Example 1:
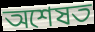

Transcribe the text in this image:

অশেষত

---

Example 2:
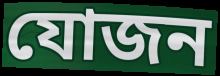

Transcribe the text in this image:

যোজন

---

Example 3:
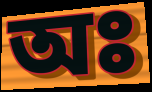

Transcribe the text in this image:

অঃ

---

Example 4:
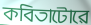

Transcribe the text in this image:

কবিতাটোৱে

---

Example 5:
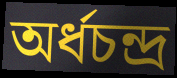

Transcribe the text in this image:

অৰ্ধচন্দ্ৰ